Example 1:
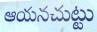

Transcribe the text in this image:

ఆయనచుట్టు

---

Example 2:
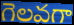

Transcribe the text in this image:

గెలవగా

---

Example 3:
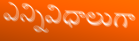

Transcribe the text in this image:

ఎన్నివిధాలుగా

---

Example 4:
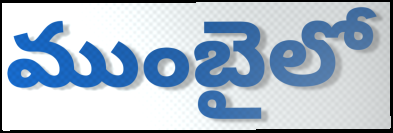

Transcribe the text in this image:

ముంబైలో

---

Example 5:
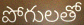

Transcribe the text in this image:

పోగులతో